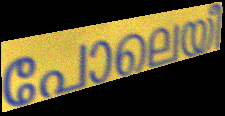
പോലെയീ